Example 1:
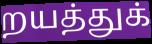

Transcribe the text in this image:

றயத்துக்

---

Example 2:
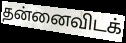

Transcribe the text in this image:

தன்னைவிடக்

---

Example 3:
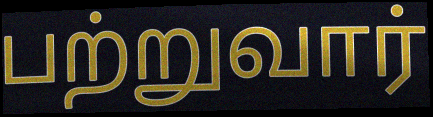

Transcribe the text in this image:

பற்றுவார்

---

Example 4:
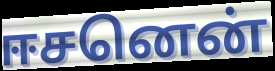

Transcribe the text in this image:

ஈசனென்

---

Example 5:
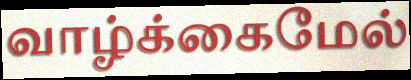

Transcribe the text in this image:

வாழ்க்கைமேல்